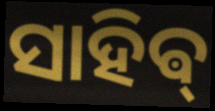
ସାହିଵ୍